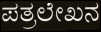
ಪತ್ರಲೇಖನ